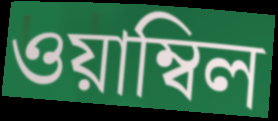
ওয়াম্বিল